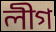
লীগ